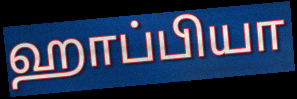
ஹாப்பியா